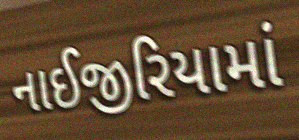
નાઈજીરિયામાં